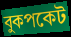
বুকপকেট